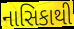
નાસિકાથી